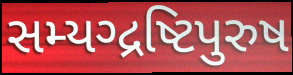
સમ્યગ્દ્રષ્ટિપુરુષ